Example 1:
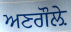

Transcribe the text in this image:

ਅਣਗੌਲ਼ੇ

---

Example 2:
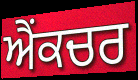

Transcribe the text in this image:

ਐਂਕਚਰ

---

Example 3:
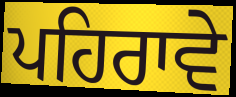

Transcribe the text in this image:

ਪਹਿਰਾਵੇ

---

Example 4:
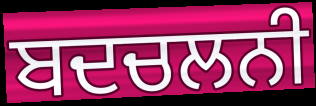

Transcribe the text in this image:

ਬਦਚਲਨੀ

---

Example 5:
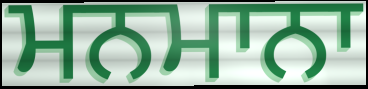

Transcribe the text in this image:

ਮਨਮਾਨਾ